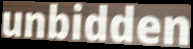
unbidden